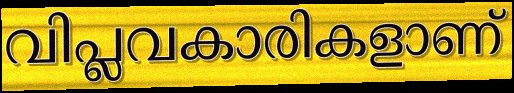
വിപ്ലവകാരികളാണ്